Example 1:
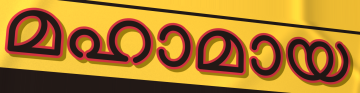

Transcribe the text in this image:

മഹാമായ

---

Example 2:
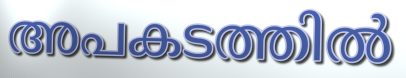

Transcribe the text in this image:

അപകടത്തിൽ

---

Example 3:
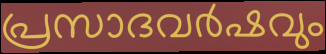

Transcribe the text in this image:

പ്രസാദവർഷവും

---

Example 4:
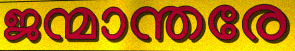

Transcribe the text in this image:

ജന്മാന്തരേ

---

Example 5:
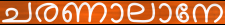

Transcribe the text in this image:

ചരണാലാനേ